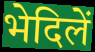
भेदिलें